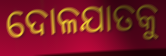
ଦୋଳଯାତକୁ